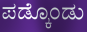
ಪಡ್ಕೊಂಡು